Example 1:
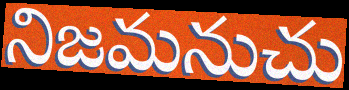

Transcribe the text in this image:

నిజమనుచు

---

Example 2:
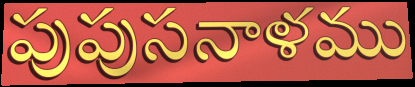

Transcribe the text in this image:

పుపుసనాళము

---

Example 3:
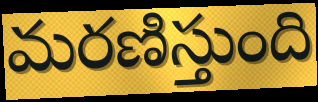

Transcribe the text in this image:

మరణిస్తుంది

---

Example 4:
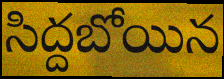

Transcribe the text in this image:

సిద్దబోయిన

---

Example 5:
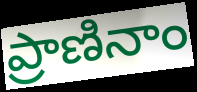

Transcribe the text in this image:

ప్రాణినాం